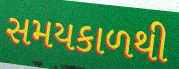
સમયકાળથી